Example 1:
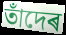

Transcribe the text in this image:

তাঁদেৰ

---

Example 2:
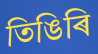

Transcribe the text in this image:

তিঙিৰি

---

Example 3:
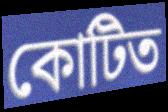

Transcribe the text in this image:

কোটিত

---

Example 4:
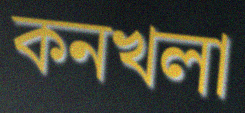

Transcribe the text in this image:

কনখলা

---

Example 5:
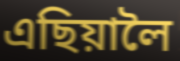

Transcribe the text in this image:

এছিয়ালৈ